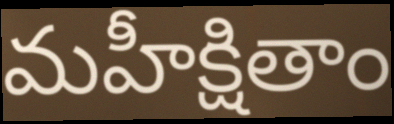
మహీక్షితాం